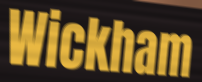
Wickham